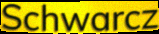
Schwarcz